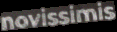
novissimis